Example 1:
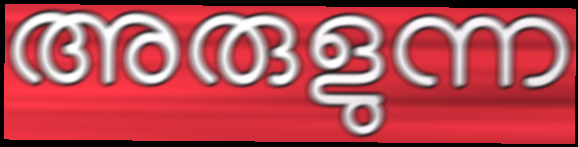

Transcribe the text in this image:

അരുളുന്ന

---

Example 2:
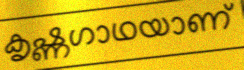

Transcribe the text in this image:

കൃഷ്ണഗാഥയാണ്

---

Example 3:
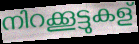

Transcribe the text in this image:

നിറക്കൂട്ടുകള്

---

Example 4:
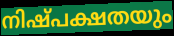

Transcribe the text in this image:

നിഷ്പക്ഷതയും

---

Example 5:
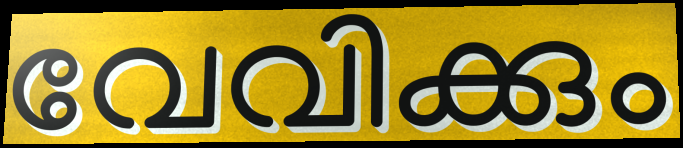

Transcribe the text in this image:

വേവിക്കും